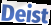
Deist